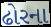
ઢોરના